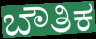
ಬೌತಿಕ